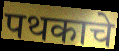
पथकाचे